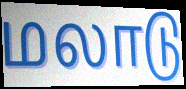
மலாடு